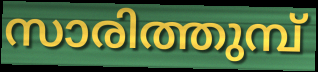
സാരിത്തുമ്പ്